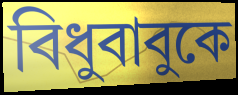
বিধুবাবুকে